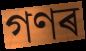
গণৰ